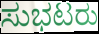
ಸುಭಟರು